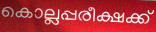
കൊല്ലപ്പരീക്ഷക്ക്